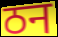
ठन